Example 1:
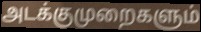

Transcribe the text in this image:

அடக்குமுறைகளும்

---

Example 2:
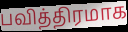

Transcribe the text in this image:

பவித்திரமாக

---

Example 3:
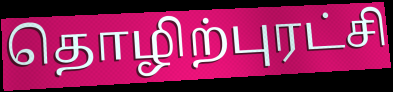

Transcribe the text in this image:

தொழிற்புரட்சி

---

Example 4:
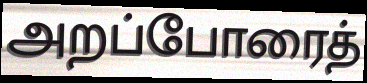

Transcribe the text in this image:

அறப்போரைத்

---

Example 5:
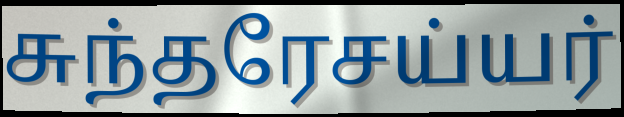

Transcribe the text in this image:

சுந்தரேசய்யர்